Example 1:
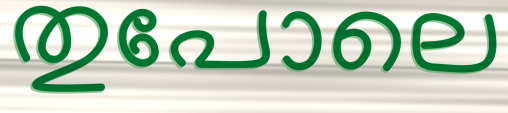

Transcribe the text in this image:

തുപോലെ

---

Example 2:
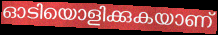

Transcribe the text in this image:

ഓടിയൊളിക്കുകയാണ്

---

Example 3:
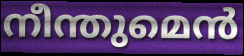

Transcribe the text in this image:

നീന്തുമെൻ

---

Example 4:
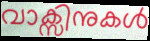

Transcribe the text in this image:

വാക്സിനുകൾ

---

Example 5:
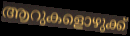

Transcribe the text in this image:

ആറുകളൊഴുക്ക്